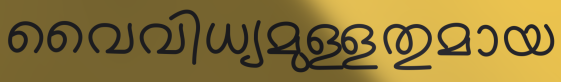
വൈവിധ്യമുള്ളതുമായ